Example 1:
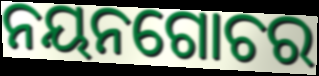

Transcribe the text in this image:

ନୟନଗୋଚର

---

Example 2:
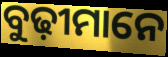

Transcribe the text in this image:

ବୁଢ଼ୀମାନେ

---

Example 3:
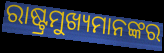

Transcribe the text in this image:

ରାଷ୍ଟ୍ରମୁଖ୍ୟମାନଙ୍କର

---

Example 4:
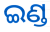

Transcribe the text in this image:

ଇଣ୍ଡ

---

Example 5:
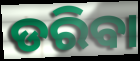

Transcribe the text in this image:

ଡରିବା